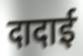
दादाई